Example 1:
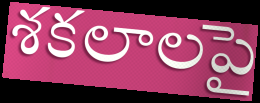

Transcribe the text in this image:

శకలాలపై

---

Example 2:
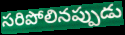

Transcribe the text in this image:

సరిపోలినప్పుడు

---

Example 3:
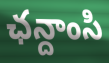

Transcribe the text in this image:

ఛన్దాంసి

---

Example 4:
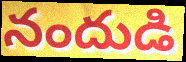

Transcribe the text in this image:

నందుడి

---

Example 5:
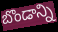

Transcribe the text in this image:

బొండాన్ని